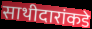
साथीदारांकडे